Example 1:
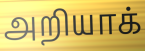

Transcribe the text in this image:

அறியாக்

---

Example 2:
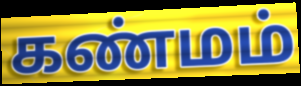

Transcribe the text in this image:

கண்மம்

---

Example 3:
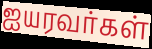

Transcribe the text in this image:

ஐயரவர்கள்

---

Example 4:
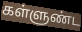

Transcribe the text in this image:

கள்ளுண்ட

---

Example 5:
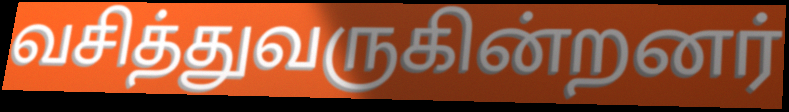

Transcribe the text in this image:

வசித்துவருகின்றனர்